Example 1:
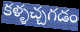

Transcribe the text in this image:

కళ్ళచ్చగడం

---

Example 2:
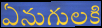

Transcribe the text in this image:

ఏనుగులకి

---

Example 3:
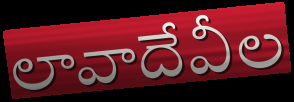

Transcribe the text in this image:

లావాదేవీల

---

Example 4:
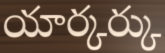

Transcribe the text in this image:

యార్కర్కు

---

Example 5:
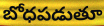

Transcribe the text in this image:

బోధపడుతూ